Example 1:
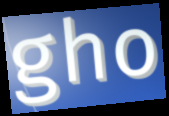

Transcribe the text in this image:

gho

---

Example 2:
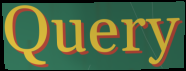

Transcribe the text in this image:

Query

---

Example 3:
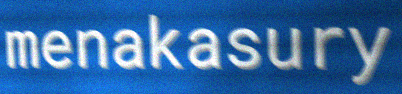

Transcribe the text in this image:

menakasury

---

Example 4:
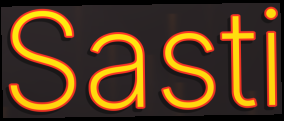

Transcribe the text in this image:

Sasti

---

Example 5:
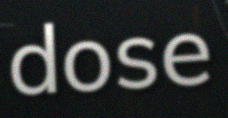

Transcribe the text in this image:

dose